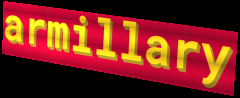
armillary